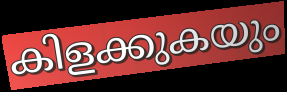
കിളക്കുകയും